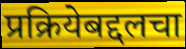
प्रक्रियेबद्दलचा